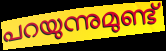
പറയുന്നുമുണ്ട്